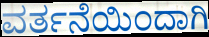
ವರ್ತನೆಯಿಂದಾಗಿ